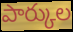
పార్కుల